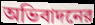
অভিবাদনের